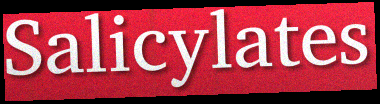
Salicylates